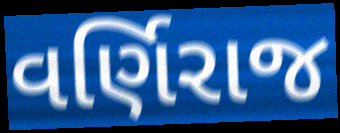
વર્ણિરાજ